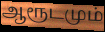
ஆரூடமும்